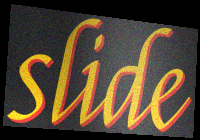
slide